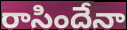
రాసిందేనా